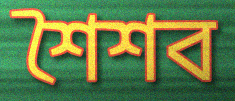
শৈশব